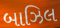
બાઝિલ